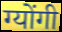
ग्योंगी